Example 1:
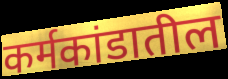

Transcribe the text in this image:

कर्मकांडातील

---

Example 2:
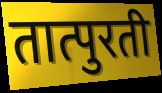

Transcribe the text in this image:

तात्पुरती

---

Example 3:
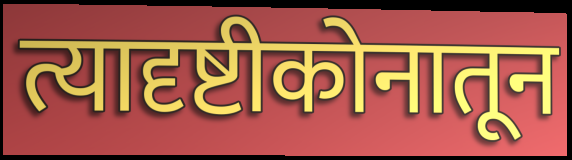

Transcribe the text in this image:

त्यादृष्टीकोनातून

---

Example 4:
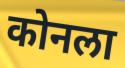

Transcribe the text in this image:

कोनला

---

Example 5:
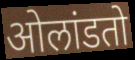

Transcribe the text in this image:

ओलांडतो